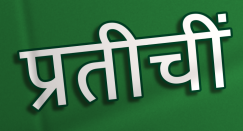
प्रतीचीं